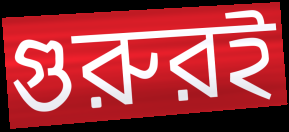
গুরুরই